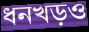
ধনখড়ও